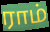
ராம்